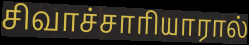
சிவாச்சாரியாரால்